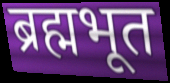
ब्रह्मभूत